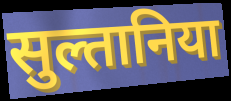
सुल्तानिया